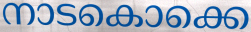
നാടകൊക്കെ